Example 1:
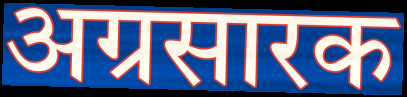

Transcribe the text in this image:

अग्रसारक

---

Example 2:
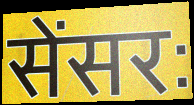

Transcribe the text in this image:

सेंसरः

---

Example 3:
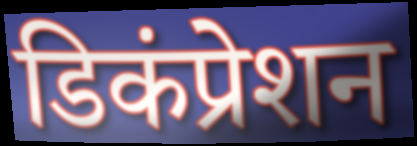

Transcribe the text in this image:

डिकंप्रेशन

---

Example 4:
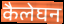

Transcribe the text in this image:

कैलेघन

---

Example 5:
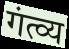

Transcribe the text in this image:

गंत्व्य